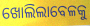
ଖୋଲିଲାବେଳକୁ